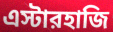
এস্টারহাজি